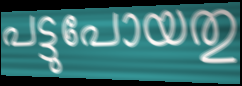
പട്ടുപോയതു